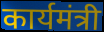
कार्यमंत्री